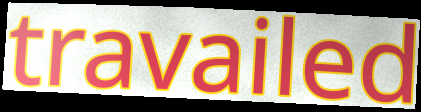
travailed